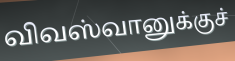
விவஸ்வானுக்குச்